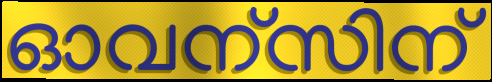
ഓവന്സിന്